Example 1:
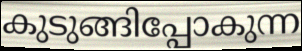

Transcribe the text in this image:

കുടുങ്ങിപ്പോകുന്ന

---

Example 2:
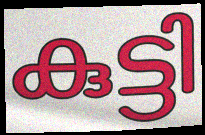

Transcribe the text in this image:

കുട്ടി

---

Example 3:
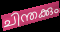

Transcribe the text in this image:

ചിന്തക്കും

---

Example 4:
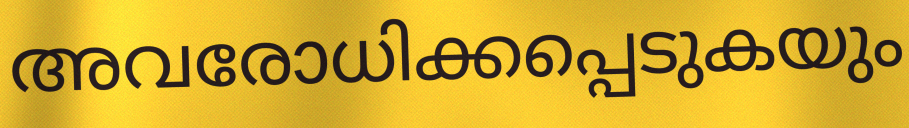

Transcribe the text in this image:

അവരോധിക്കപ്പെടുകയും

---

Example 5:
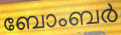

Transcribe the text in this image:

ബോംബർ